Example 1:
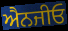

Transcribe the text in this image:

ਐਨਜੀਓ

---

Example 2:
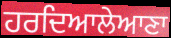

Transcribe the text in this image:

ਹਰਦਿਆਲੇਆਣਾ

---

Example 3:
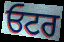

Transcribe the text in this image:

ਓਟਰ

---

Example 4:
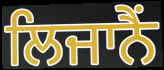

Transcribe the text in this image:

ਲਿਜਾਨੈਂ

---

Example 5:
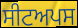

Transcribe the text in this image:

ਸੀਟਅਪਸ